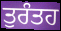
ਤੁਰੰਤਹ